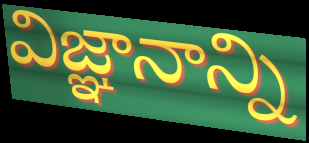
విజ్ఞానాన్ని